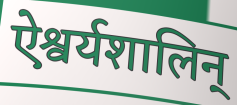
ऐश्वर्यशालिन्